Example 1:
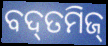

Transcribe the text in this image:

ବଦ୍‌ତମିଜ୍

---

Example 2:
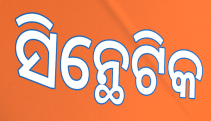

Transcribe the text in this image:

ସିନ୍ଥେଟିକ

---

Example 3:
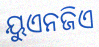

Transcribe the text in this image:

ୟୁଏନଜିଏ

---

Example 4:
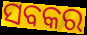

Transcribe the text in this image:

ସବକର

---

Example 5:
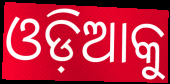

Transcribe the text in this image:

ଓଡ଼ିଆକୁ